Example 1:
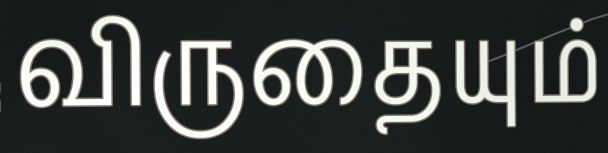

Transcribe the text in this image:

விருதையும்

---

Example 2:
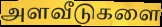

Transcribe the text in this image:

அளவீடுகளை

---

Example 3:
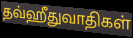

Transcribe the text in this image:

தவ்ஹீதுவாதிகள்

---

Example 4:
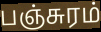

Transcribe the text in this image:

பஞ்சுரம்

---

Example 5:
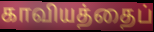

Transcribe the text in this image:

காவியத்தைப்